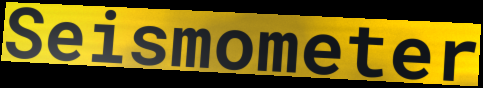
Seismometer